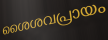
ശൈശവപ്രായം